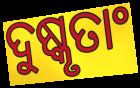
ଦୁଷ୍କୃତାଂ